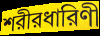
শরীরধারিণী